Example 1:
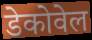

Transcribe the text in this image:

डेकोवेल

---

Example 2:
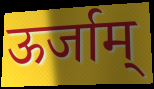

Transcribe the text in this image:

ऊर्जाम्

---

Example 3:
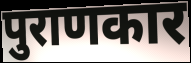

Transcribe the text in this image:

पुराणकार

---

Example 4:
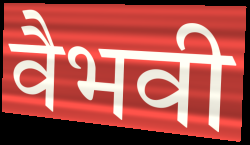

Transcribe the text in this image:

वैभवी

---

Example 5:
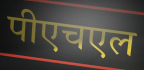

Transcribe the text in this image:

पीएचएल